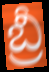
బ్రీ